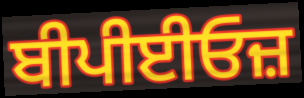
ਬੀਪੀਈਓਜ਼